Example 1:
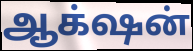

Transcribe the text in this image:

ஆக்‌ஷன்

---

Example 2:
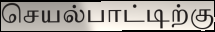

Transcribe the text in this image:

செயல்பாட்டிற்கு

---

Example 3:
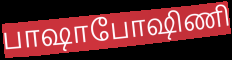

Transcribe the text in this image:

பாஷாபோஷிணி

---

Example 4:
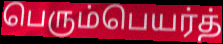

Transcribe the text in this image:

பெரும்பெயர்த்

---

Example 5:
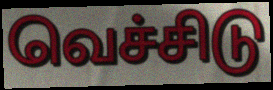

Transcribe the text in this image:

வெச்சிடு